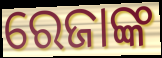
ରେଜାଙ୍କ